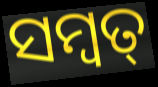
ସମ୍ବତ୍